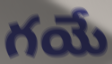
గయే